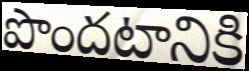
పొందటానికి